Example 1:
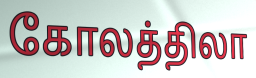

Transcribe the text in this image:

கோலத்திலா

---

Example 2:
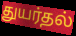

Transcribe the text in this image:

துயர்தல்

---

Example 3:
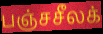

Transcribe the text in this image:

பஞ்சசீலக்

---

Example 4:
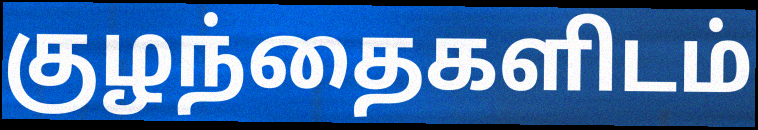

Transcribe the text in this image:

குழந்தைகளிடம்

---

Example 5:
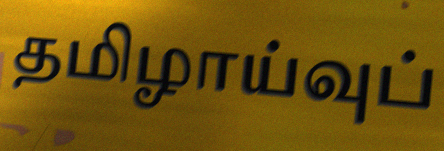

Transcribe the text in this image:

தமிழாய்வுப்